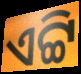
ଏଟ୍ଟି